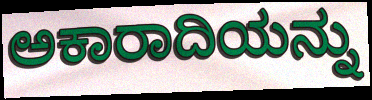
ಅಕಾರಾದಿಯನ್ನು